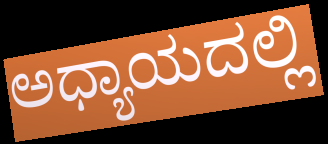
ಅಧ್ಯಾಯದಲ್ಲಿ